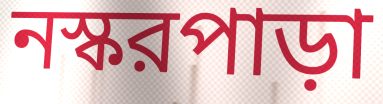
নস্করপাড়া